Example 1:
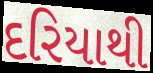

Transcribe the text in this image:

દરિયાથી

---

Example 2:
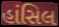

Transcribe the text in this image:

હાંસિલ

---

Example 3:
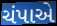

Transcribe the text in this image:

ચંપાએ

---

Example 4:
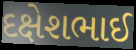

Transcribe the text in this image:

દક્ષેશભાઈ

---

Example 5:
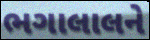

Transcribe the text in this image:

ભગાલાલને